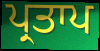
ਪ੍ਰਤਾਪ